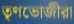
তৃণভোজীরা